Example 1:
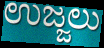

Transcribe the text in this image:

ಉಜ್ಜಲು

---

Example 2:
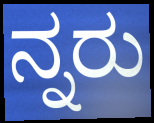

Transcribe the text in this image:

ನ್ನರು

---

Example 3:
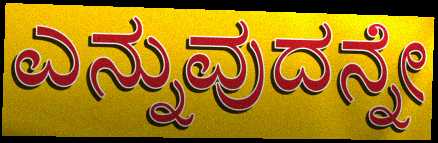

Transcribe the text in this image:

ಎನ್ನುವುದನ್ನೇ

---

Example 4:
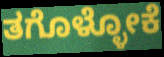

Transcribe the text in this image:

ತಗೊಳ್ಳೋಕೆ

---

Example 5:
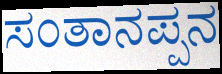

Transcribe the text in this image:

ಸಂತಾನಪ್ಪನ